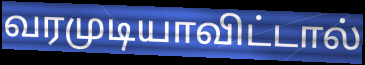
வரமுடியாவிட்டால்